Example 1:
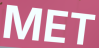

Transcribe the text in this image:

MET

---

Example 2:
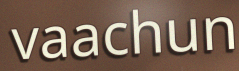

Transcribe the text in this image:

vaachun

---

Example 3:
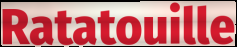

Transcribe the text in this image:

Ratatouille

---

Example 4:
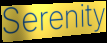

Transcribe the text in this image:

Serenity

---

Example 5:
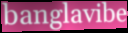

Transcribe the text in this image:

banglavibe